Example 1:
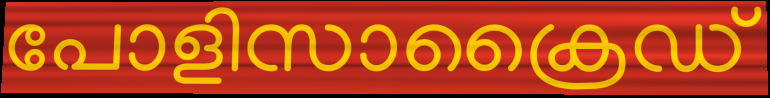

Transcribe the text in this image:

പോളിസാക്രൈഡ്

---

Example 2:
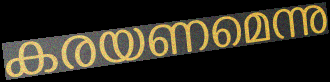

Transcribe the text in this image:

കരയണമെന്നു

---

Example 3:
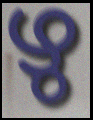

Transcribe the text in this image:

ഴു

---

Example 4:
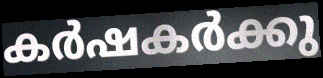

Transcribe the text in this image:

കർഷകർക്കു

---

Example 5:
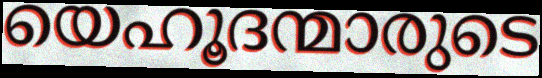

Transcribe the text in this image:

യെഹൂദന്മാരുടെ